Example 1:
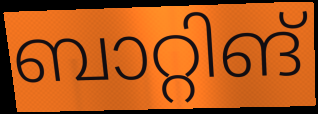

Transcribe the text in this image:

ബാറ്റിങ്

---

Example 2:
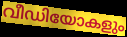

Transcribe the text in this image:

വീഡിയോകളും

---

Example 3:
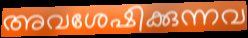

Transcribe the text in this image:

അവശേഷിക്കുന്നവ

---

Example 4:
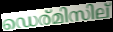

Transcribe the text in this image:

ഡെര്മിസില്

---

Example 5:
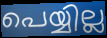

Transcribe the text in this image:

പെയ്യില്ല